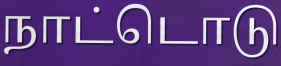
நாட்டொடு